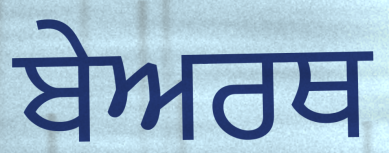
ਬੇਅਰਥ